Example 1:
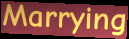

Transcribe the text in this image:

Marrying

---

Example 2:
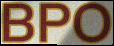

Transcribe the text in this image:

BPO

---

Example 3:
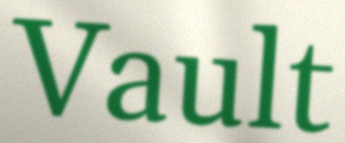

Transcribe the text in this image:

Vault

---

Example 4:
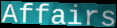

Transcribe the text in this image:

Affairs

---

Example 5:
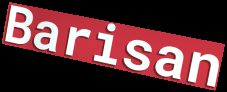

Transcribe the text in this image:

Barisan